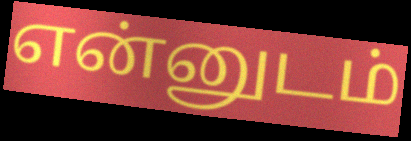
என்னுடம்